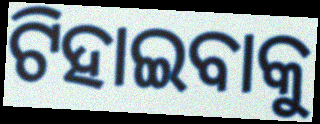
ଟିହାଇବାକୁ